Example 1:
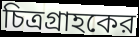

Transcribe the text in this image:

চিত্রগ্রাহকের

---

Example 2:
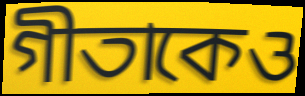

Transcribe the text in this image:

গীতাকেও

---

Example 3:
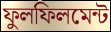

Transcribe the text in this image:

ফুলফিলমেন্ট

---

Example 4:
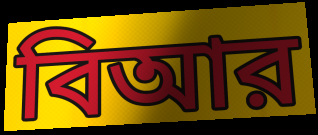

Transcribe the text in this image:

বিআর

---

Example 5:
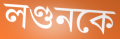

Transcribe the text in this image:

লণ্ডনকে